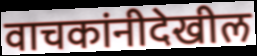
वाचकांनीदेखील